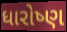
ધારોષ્ણ